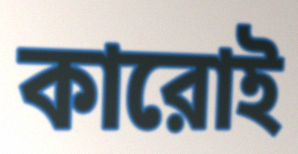
কারোই